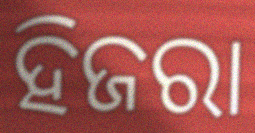
ହିଜରା